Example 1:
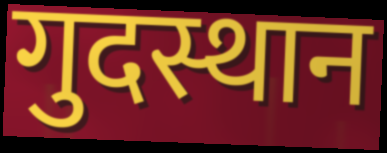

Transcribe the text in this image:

गुदस्थान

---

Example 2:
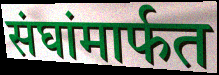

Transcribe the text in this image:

संघांमार्फत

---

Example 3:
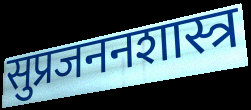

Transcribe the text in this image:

सुप्रजननशास्त्र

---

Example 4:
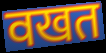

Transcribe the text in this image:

वखत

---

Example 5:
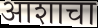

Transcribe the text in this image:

आशाचा